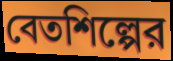
বেতশিল্পের